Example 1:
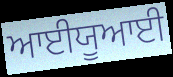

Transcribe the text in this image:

ਆਈਯੂਆਈ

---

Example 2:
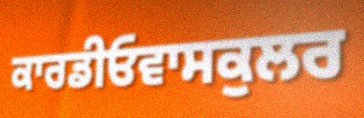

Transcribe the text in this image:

ਕਾਰਡੀਓਵਾਸਕੁਲਰ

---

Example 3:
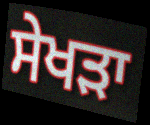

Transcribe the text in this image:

ਸੇਖੜਾ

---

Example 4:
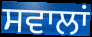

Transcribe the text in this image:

ਸਵਾਲਾਂ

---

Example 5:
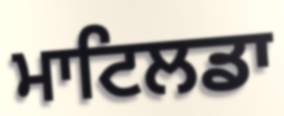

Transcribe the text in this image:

ਮਾਟਿਲਡਾ